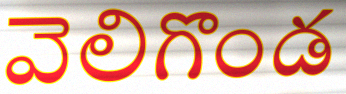
వెలిగొండ